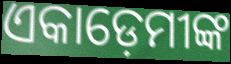
ଏକାଡ଼େମୀଙ୍କ